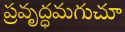
ప్రవృద్ధమగుచూ